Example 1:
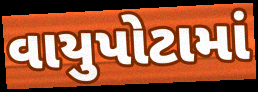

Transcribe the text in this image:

વાયુપોટામાં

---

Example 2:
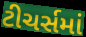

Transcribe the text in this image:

ટીચર્સમાં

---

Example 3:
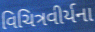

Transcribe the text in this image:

વિચિત્રવીર્યના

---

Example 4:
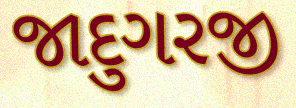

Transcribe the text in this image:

જાદુગરજી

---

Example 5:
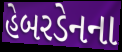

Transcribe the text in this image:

હેબરડેનના